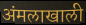
अंमलाखाली